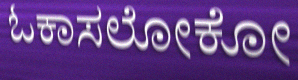
ಓಕಾಸಲೋಕೋ